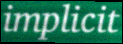
implicit